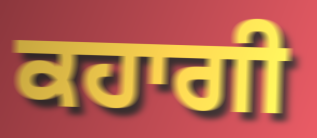
ਕਹਾਗੀ